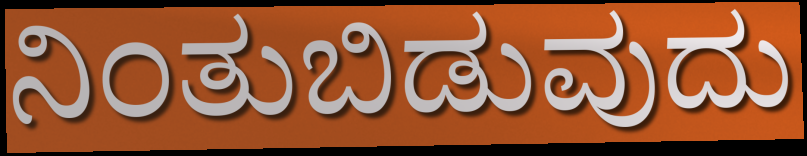
ನಿಂತುಬಿಡುವುದು